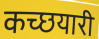
कच्छयारी